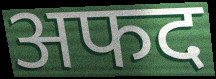
अफद